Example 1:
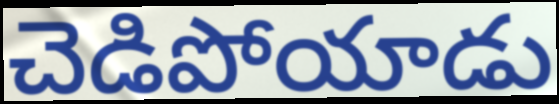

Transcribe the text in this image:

చెడిపోయాడు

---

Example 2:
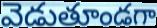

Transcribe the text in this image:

వెడుతూండగా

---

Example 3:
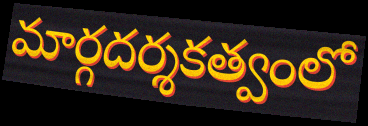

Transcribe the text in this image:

మార్గదర్శకత్వంలో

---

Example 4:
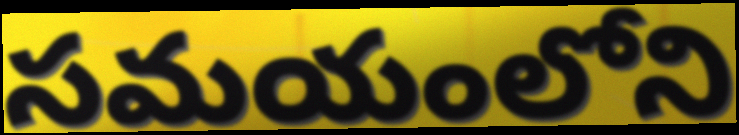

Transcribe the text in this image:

సమయంలోని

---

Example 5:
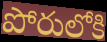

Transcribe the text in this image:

పోరులోకి